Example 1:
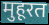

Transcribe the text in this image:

मुहूरत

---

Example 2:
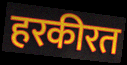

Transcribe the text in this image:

हरकीरत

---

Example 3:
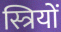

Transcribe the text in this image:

स्त्रियों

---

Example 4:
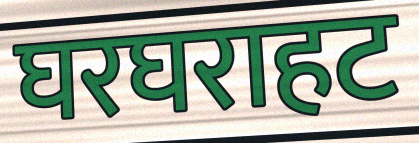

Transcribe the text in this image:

घरघराहट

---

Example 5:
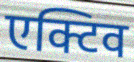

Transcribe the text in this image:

एक्टिव